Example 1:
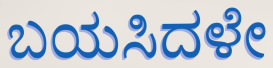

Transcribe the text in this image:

ಬಯಸಿದಳೇ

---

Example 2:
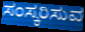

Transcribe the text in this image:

ಸಂಸ್ಕರಿಸುವ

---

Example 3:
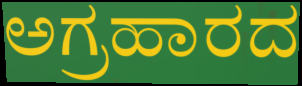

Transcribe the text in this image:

ಅಗ್ರಹಾರದ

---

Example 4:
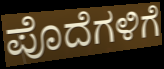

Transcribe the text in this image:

ಪೊದೆಗಳಿಗೆ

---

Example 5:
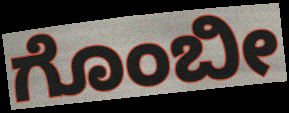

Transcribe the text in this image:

ಗೊಂಬೀ